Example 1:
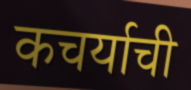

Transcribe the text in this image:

कचर्याची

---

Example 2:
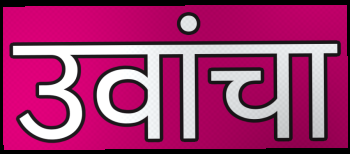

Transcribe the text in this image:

उवांचा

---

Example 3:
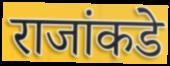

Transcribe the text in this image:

राजांकडे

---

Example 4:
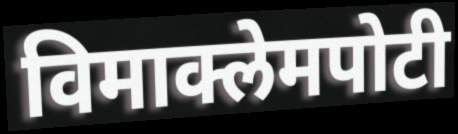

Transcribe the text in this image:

विमाक्लेमपोटी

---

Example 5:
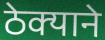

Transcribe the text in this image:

ठेक्याने